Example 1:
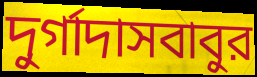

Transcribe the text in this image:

দুর্গাদাসবাবুর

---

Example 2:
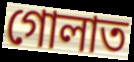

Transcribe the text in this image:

গোলাত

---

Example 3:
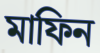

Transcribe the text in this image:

মাফিন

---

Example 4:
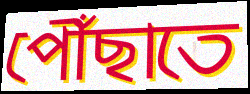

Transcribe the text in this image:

পৌঁছাতে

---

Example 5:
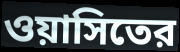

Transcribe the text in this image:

ওয়াসিতের